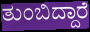
ತುಂಬಿದ್ದಾರೆ